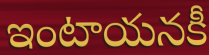
ఇంటాయనకీ